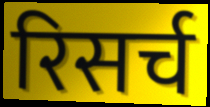
रिसर्च